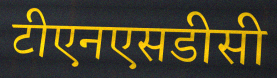
टीएनएसडीसी